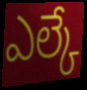
ఎల్కే